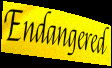
Endangered